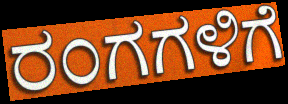
ರಂಗಗಳಿಗೆ